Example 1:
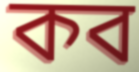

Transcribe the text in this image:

কব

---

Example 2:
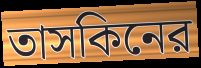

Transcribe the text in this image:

তাসকিনের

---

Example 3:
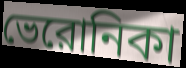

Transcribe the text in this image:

ভেরোনিকা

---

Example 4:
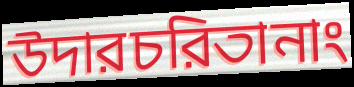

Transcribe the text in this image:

উদারচরিতানাং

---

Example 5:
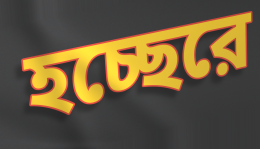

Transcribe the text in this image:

হচ্ছেরে